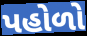
પહોળો